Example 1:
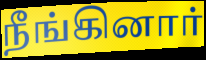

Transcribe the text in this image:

நீங்கினார்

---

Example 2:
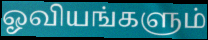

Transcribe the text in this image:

ஓவியங்களும்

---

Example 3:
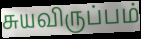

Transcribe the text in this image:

சுயவிருப்பம்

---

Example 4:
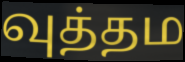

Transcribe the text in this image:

வுத்தம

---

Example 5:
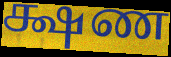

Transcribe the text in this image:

க்ஷண